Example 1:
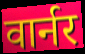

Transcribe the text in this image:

वार्नर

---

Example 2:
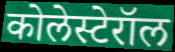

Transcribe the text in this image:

कोलेस्टेरॉल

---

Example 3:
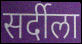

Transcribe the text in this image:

सर्दीला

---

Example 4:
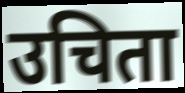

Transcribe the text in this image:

उचिता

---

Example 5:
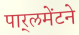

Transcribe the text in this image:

पार्लमेंटने